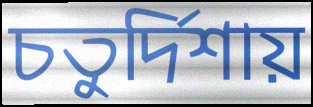
চতুর্দিশায়